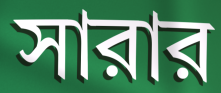
সারার